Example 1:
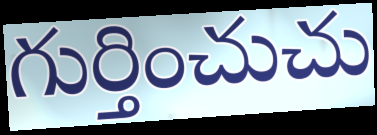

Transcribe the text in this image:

గుర్తించుచు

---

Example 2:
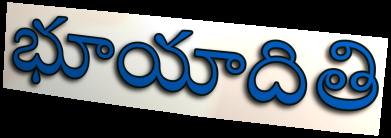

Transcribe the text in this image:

భూయాదితి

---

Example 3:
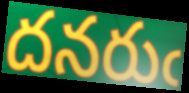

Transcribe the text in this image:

దనరుఁ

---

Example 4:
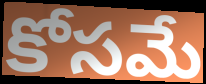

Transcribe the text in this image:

కోసమే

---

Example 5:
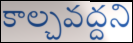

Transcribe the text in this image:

కాల్చవద్దని